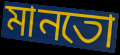
মানতো